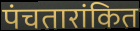
पंचतारांकित